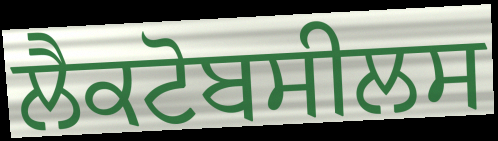
ਲੈਕਟੋਬਸੀਲਸ